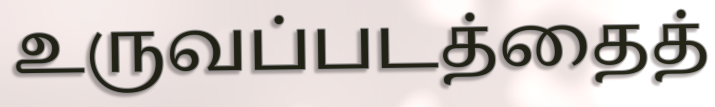
உருவப்படத்தைத்